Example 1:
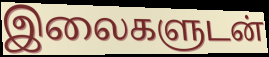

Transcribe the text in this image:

இலைகளுடன்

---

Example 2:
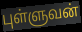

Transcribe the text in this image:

புள்ளுவன்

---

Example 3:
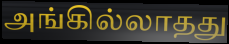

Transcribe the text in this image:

அங்கில்லாதது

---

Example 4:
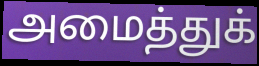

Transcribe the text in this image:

அமைத்துக்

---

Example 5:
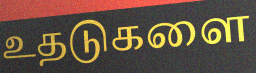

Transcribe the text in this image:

உதடுகளை